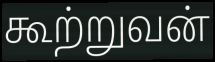
கூற்றுவன்